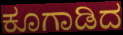
ಕೂಗಾಡಿದ